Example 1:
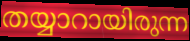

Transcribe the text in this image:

തയ്യാറായിരുന്ന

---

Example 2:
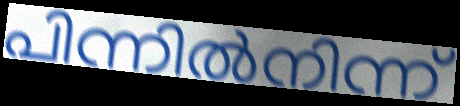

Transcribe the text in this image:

പിന്നിൽനിന്ന്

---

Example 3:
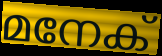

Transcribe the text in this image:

മനേക്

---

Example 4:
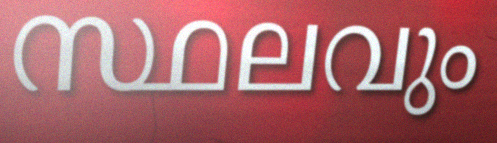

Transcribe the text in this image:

സ്ഥലവും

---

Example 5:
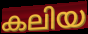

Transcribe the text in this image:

കലിയ